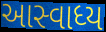
આસ્વાધ્ય